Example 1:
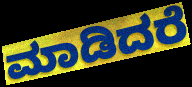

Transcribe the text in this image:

ಮಾಡಿದರೆ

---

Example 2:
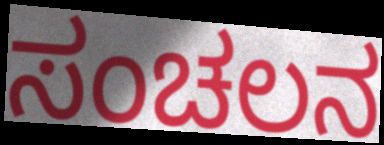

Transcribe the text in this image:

ಸಂಚಲನ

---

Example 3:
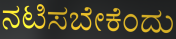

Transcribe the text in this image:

ನಟಿಸಬೇಕೆಂದು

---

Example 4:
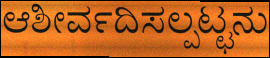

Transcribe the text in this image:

ಆಶೀರ್ವದಿಸಲ್ಪಟ್ಟನು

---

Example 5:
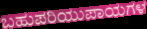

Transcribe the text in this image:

ಬಹುಪರಿಯುಪಾಯಗಳ